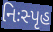
નિઃસ્પૃહ